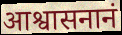
आश्वासनानं